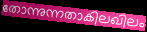
തോന്നുന്നതാകിലഖിലം